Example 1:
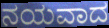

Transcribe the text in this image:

ನಯವಾದ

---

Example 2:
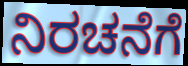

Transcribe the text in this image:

ನಿರಚನೆಗೆ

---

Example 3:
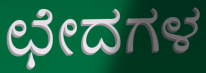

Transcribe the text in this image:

ಛೇದಗಳ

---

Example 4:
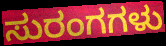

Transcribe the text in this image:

ಸುರಂಗಗಳು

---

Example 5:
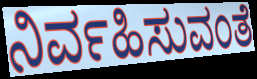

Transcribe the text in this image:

ನಿರ್ವಹಿಸುವಂತೆ